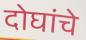
दोघांचे